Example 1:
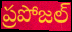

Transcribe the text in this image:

ప్రపోజల్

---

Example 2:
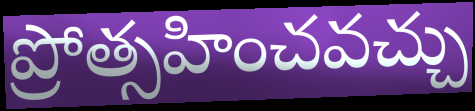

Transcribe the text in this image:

ప్రోత్సహించవచ్చు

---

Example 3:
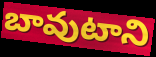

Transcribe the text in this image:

బావుటాని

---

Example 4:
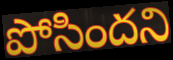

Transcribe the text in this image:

పోసిందని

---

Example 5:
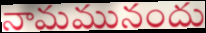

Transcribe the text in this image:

నామమునందు